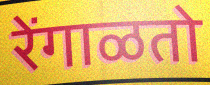
रेंगाळतो